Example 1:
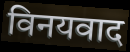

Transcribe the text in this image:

विनयवाद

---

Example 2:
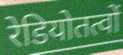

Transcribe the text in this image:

रेडियोतत्वों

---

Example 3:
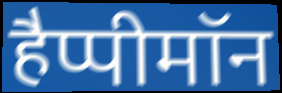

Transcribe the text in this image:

हैप्पीमॉन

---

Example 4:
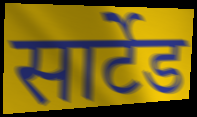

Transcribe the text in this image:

सार्टेड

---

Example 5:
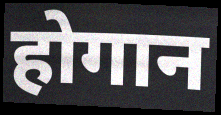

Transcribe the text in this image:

होगान